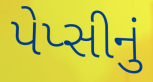
પેપ્સીનું